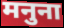
मनुना